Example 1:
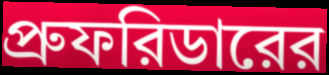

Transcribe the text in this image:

প্রুফরিডারের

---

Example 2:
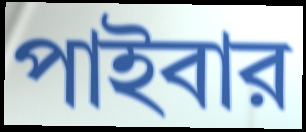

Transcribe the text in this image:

পাইবার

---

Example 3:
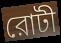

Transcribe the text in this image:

রোটী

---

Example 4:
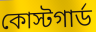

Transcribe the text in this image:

কোস্টগার্ড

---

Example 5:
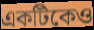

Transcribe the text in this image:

একটিকেও